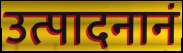
उत्पादनानं